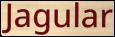
Jagular